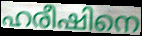
ഹരീഷിനെ